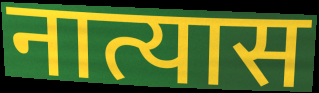
नात्यास